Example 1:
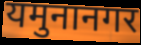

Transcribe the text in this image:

यमुनानगर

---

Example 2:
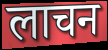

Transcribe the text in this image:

लाचन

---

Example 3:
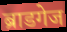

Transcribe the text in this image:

ब्राडगेज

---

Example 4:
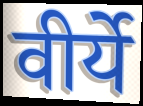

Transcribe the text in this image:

वीर्ये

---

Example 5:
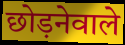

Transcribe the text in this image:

छोड़नेवाले